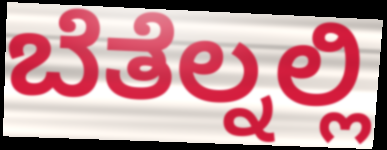
ಬೆತೆಲ್ನಲ್ಲಿ